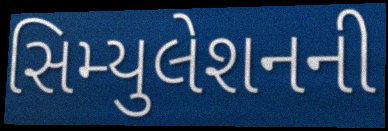
સિમ્યુલેશનની